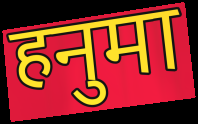
हनुमा